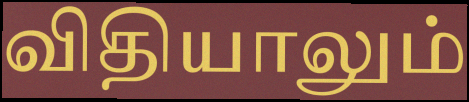
விதியாலும்